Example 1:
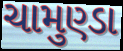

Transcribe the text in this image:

ચામુણ્ડા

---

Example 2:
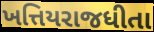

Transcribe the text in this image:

ખત્તિયરાજધીતા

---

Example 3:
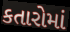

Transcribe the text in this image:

કતારોમાં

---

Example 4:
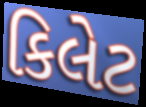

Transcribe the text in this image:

કિલેટ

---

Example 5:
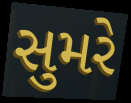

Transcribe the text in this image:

સુમરે